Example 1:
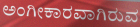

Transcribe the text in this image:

ಅಂಗೀಕಾರವಾಗಿರುವ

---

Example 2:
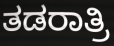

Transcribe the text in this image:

ತಡರಾತ್ರಿ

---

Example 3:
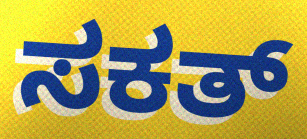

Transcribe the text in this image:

ಸಕತ್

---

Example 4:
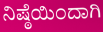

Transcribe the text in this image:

ನಿಷ್ಠೆಯಿಂದಾಗಿ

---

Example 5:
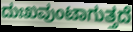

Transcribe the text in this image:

ದುಃಖವುಂಟಾಗುತ್ತದೆ